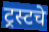
ट्रस्टचे